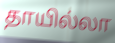
தாயில்லா